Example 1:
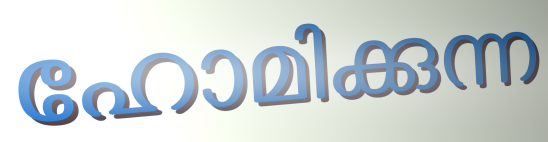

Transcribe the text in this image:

ഹോമിക്കുന്ന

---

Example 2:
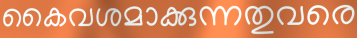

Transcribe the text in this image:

കൈവശമാക്കുന്നതുവരെ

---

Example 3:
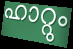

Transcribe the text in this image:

ഹാറ്റും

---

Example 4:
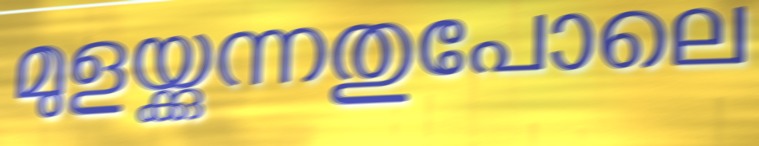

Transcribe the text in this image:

മുളയ്ക്കുന്നതുപോലെ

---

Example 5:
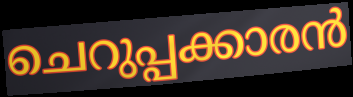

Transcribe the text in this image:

ചെറുപ്പക്കാരൻ